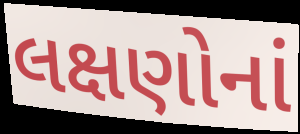
લક્ષણોનાં